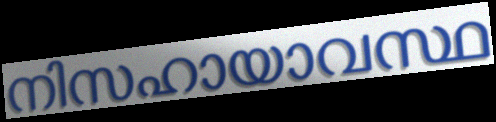
നിസഹായാവസ്ഥ